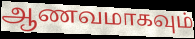
ஆணவமாகவும்